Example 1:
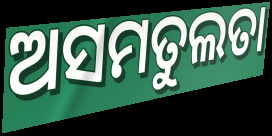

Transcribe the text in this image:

ଅସମତୁଲତା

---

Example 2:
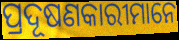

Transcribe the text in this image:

ପ୍ରଦୂଷଣକାରୀମାନେ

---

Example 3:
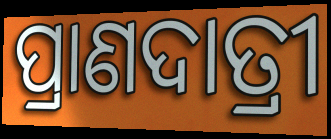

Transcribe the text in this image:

ପ୍ରାଣଦାତ୍ରୀ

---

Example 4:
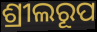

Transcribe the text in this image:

ଶ୍ରୀଲରୂପ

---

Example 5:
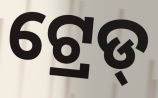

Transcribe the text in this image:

ଟ୍ରେଡ୍